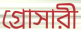
গ্রোসারী